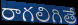
రాగలిగితే